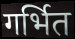
गर्भित